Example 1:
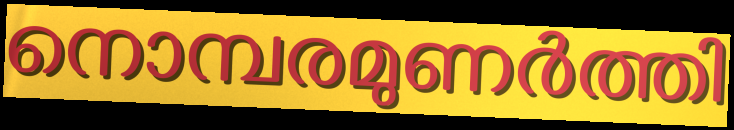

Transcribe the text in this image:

നൊമ്പരമുണർത്തി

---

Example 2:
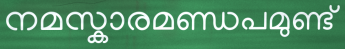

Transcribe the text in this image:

നമസ്കാരമണ്ഡപമുണ്ട്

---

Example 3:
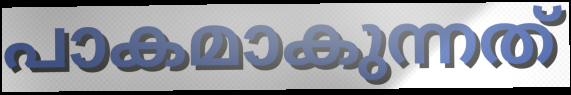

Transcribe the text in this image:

പാകമാകുന്നത്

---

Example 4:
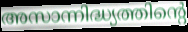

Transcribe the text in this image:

അസാന്നിദ്ധ്യത്തിന്റെ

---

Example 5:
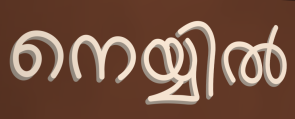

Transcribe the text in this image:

നെയ്യിൽ